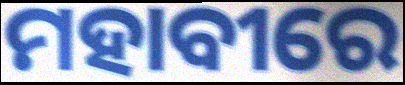
ମହାବୀରେ